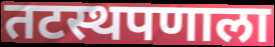
तटस्थपणाला